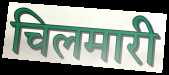
चिलमारी